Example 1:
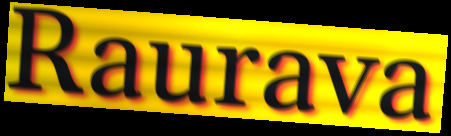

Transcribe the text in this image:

Raurava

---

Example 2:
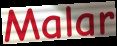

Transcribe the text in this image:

Malar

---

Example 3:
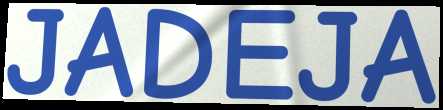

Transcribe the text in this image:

JADEJA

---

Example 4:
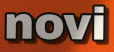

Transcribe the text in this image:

novi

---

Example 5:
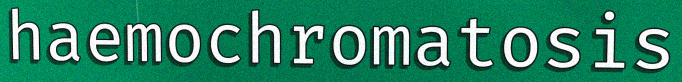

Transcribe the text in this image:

haemochromatosis